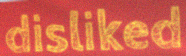
disliked